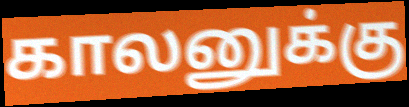
காலனுக்கு